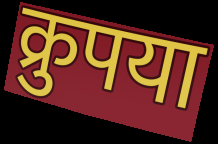
क्रुपया